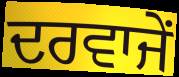
ਦਰਵਾਜੇਂ